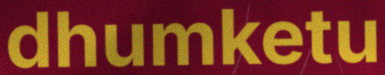
dhumketu